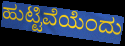
ಹುಟ್ಟಿವೆಯೆಂದು